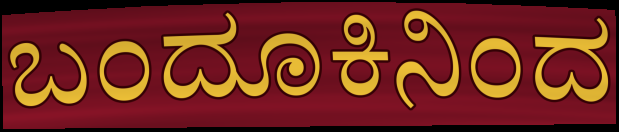
ಬಂದೂಕಿನಿಂದ